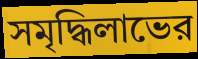
সমৃদ্ধিলাভের